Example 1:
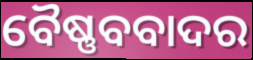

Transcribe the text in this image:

ବୈଷ୍ଣବବାଦର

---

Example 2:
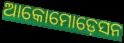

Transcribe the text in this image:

ଆକୋମୋଡ଼େସନ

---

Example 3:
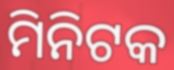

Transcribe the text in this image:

ମିନିଟକ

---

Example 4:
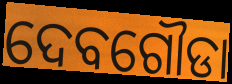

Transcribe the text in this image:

ଦେବଗୌଡା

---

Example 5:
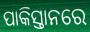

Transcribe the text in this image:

ପାକିସ୍ତାନରେ